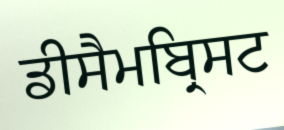
ਡੀਸੈਮਬ੍ਰਿਸਟ